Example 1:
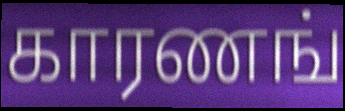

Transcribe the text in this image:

காரணங்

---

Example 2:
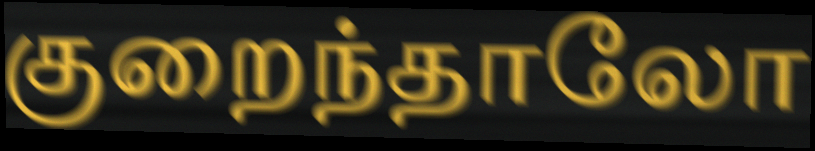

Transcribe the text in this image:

குறைந்தாலோ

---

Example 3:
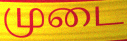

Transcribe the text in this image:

முடை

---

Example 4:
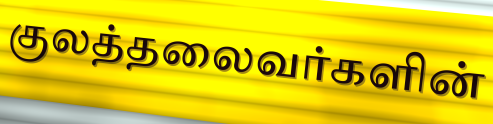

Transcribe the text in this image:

குலத்தலைவர்களின்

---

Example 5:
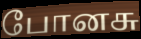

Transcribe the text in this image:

போனசு